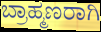
ಬ್ರಾಹ್ಮಣರಾಗಿ